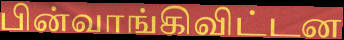
பின்வாங்கிவிட்டன